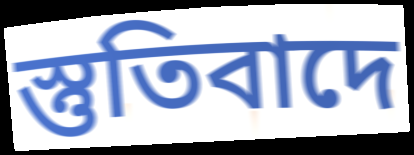
স্তুতিবাদে